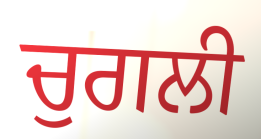
ਚੁਗਲੀ